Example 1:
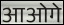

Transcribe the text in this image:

आओगे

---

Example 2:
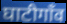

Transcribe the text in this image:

घाटीगाँव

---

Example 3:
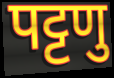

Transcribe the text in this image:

पट्टणु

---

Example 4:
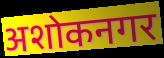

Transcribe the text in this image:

अशोकनगर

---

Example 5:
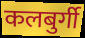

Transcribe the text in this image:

कलबुर्गी